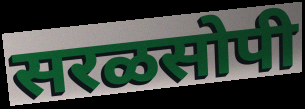
सरळसोपी